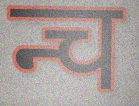
न्च